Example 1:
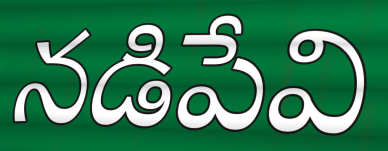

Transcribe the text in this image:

నడిపేవి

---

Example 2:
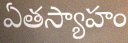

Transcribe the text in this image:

ఏతస్యాహం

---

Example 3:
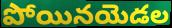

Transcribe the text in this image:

పోయినయెడల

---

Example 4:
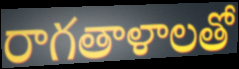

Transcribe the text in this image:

రాగతాళాలతో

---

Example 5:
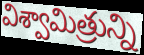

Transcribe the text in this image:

విశ్వామిత్రున్ని